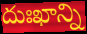
దుఃఖాన్ని